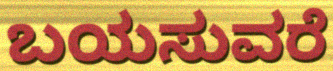
ಬಯಸುವರೆ